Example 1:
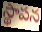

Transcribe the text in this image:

స్థాపన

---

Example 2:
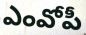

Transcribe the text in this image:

ఎంవోపీ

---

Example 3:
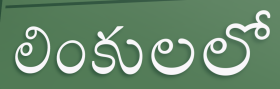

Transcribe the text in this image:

లింకులలో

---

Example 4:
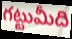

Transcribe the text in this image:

గట్టుమీది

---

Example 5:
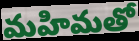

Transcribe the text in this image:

మహిమతో